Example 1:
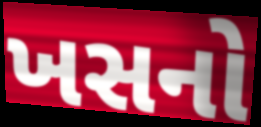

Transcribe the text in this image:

ખસનો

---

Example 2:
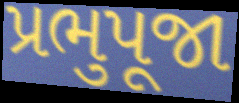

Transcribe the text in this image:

પ્રભુપૂજા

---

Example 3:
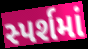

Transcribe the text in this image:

સ્પર્શમાં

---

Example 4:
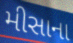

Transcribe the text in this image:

મીસાના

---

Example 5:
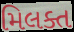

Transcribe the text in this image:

મિલક્ત